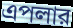
এপলার